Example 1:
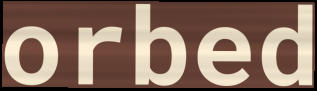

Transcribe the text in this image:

orbed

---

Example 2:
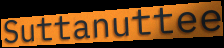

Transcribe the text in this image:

Suttanuttee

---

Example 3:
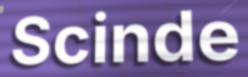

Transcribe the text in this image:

Scinde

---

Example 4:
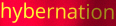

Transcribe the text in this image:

hybernation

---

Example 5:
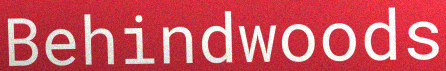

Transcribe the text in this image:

Behindwoods